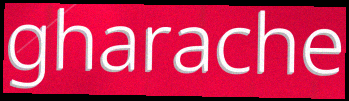
gharache